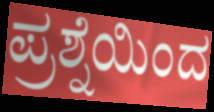
ಪ್ರಶ್ನೆಯಿಂದ